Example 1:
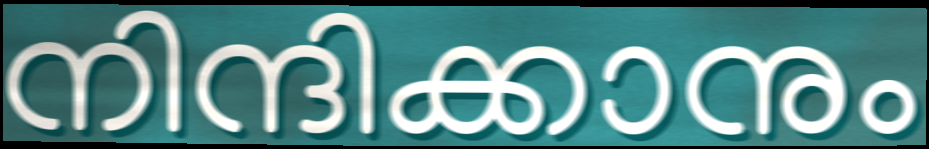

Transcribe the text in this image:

നിന്ദിക്കാനും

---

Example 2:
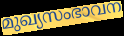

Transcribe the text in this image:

മുഖ്യസംഭാവന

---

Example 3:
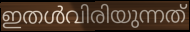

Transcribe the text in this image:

ഇതൾവിരിയുന്നത്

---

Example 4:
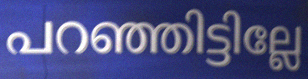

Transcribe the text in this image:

പറഞ്ഞിട്ടില്ലേ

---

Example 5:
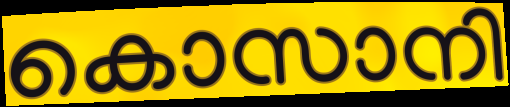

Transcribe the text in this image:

കൊസാനി